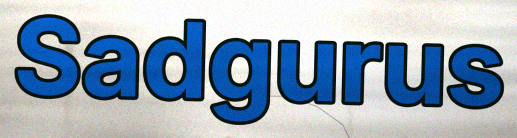
Sadgurus